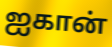
ஐகான்